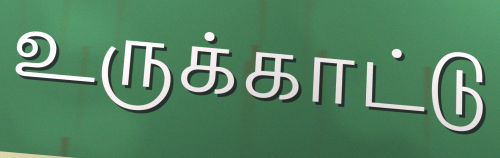
உருக்காட்டு